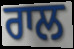
ਰਾਲ